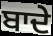
ਬਾਦੇ